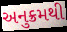
અનુક્રમથી